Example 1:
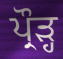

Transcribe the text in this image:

ਪ੍ਰੌੜ੍ਹ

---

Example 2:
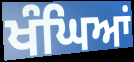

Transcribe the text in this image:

ਖੰਘਿਆਂ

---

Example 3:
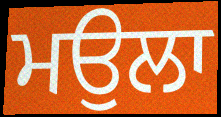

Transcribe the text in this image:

ਮਉਲਾ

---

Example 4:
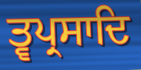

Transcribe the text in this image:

ਤ੍ਵਪ੍ਰਸਾਦਿ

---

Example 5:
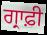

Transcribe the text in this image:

ਗ੍ਰਾਫ਼ੀ